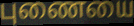
புணையை